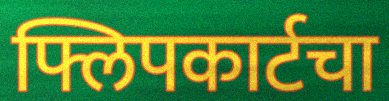
फ्लिपकार्टचा